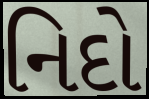
નિદો